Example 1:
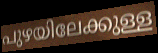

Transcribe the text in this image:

പുഴയിലേക്കുള്ള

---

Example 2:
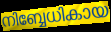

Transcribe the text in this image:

നിബ്ബേധികായ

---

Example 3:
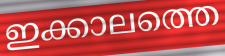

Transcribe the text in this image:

ഇക്കാലത്തെ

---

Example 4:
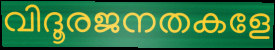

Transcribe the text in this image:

വിദൂരജനതകളേ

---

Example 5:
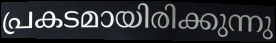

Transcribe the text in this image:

പ്രകടമായിരിക്കുന്നു